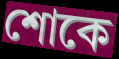
শোকে